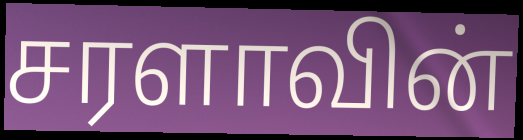
சரளாவின்